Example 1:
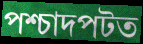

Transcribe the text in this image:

পশ্চাদপটত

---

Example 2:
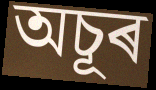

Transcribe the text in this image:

অচূৰ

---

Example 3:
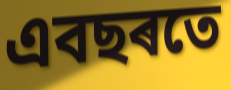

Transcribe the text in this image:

এবছৰতে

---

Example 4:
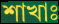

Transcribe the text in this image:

শাখাঃ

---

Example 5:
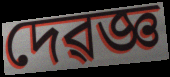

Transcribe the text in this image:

দেৱজ্ঞ